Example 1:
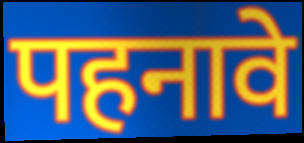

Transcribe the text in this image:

पहनावे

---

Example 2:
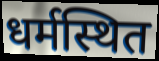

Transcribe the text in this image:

धर्मस्थित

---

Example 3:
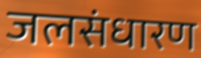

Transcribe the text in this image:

जलसंधारण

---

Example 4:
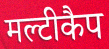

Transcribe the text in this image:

मल्टीकैप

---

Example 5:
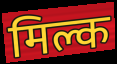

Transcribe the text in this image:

मिल्क